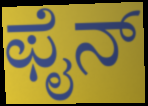
ಫೈನ್